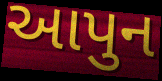
આપુન